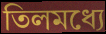
তিলমধ্যে